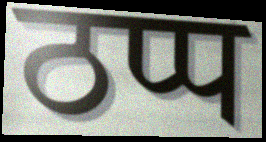
ठप्प